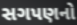
સગપણનો